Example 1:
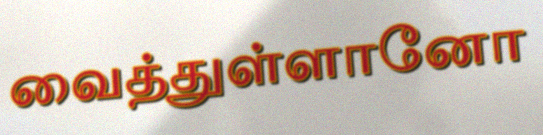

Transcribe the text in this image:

வைத்துள்ளானோ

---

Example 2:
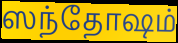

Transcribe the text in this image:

ஸந்தோஷம்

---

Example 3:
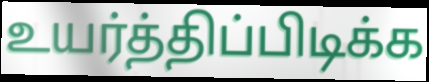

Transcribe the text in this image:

உயர்த்திப்பிடிக்க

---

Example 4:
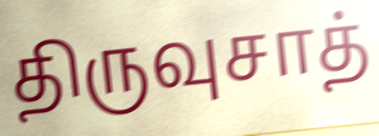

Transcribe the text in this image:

திருவுசாத்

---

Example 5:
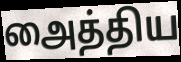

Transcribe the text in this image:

அைத்திய